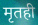
मृतही